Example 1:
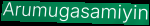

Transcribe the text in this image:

Arumugasamiyin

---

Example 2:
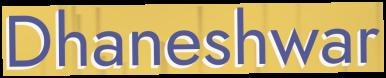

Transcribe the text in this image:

Dhaneshwar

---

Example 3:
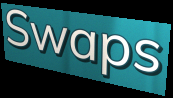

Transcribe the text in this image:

Swaps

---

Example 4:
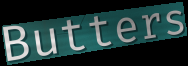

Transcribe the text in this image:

Butters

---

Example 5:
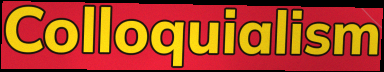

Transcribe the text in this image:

Colloquialism